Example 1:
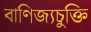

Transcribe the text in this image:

বাণিজ্যচুক্তি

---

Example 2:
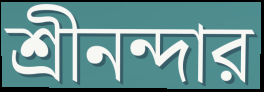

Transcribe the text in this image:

শ্রীনন্দার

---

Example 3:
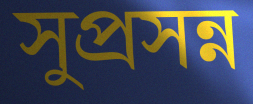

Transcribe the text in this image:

সুপ্রসন্ন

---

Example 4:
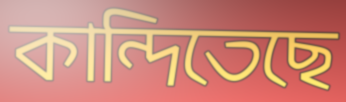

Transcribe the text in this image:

কান্দিতেছে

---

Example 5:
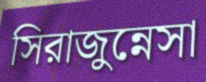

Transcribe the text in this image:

সিরাজুন্নেসা